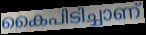
കൈപിടിച്ചാണ്